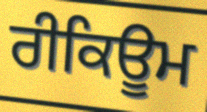
ਰੀਕਿਊਮ